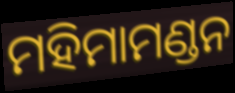
ମହିମାମଣ୍ଡନ